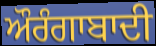
ਔਰੰਗਾਬਾਦੀ